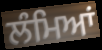
ਲੰਮਿਆਂ